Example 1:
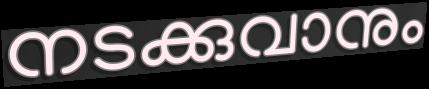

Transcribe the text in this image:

നടക്കുവാനും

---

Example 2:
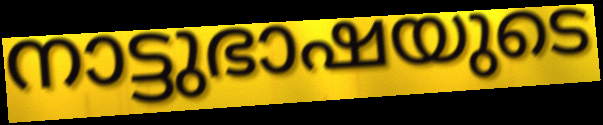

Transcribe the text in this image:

നാട്ടുഭാഷയുടെ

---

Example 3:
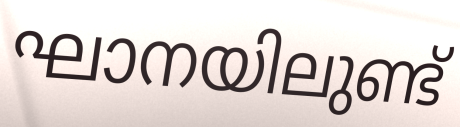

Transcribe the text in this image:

ഘാനയിലുണ്ട്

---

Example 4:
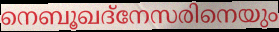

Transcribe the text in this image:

നെബൂഖദ്നേസരിനെയും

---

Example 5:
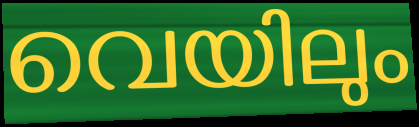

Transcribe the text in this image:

വെയിലും